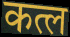
कत्‍ल